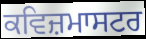
ਕਵਿਜ਼ਮਾਸਟਰ